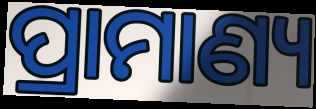
ପ୍ରାମାଣ୍ୟ